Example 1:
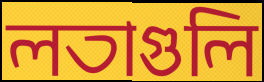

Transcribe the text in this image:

লতাগুলি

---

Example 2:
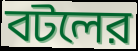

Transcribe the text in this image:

বটলের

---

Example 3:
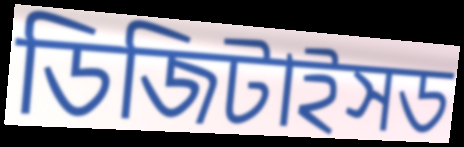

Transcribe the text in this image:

ডিজিটাইসড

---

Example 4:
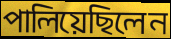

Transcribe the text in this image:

পালিয়েছিলেন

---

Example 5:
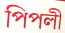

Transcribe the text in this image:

পিপলী